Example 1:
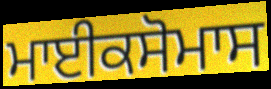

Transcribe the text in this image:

ਮਾਈਕਸੋਮਾਸ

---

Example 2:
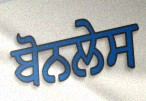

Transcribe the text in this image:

ਬੋਨਲੇਸ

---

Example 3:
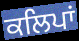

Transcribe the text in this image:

ਕਲਿਪਾਂ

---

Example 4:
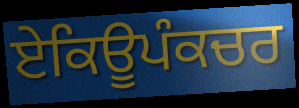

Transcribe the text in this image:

ਏਕਿਊਪੰਕਚਰ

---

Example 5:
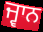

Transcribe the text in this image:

ਜ੍ਵਾਨ